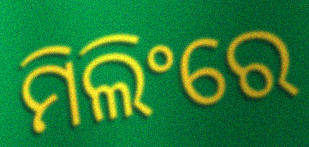
ମିଲିଂରେ